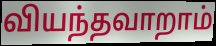
வியந்தவாறாம்